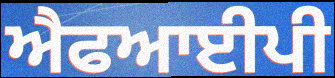
ਐਫਆਈਪੀ